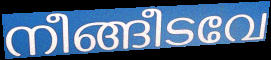
നീങ്ങീടവേ